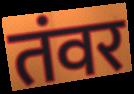
तंवर